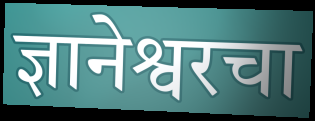
ज्ञानेश्वरचा